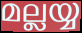
മല്ലയ്യ